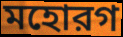
মহোরগ